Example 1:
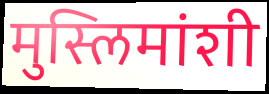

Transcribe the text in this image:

मुस्लिमांशी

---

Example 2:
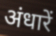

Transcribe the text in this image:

अंधारें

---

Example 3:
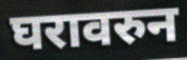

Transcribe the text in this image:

घरावरुन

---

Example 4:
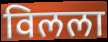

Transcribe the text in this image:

विलला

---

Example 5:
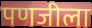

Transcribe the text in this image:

पणजीला